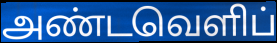
அண்டவெளிப்